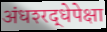
अंधश्रद्धेपेक्षा